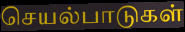
செயல்பாடுகள்